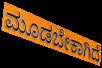
ಮೂಡಬೇಕಾಗಿದೆ